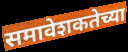
समावेशकतेच्या